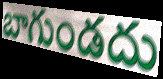
బాగుండదు